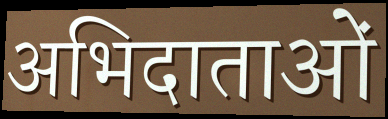
अभिदाताओं